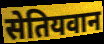
सेतियवान